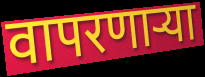
वापरणाऱ्या